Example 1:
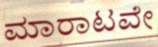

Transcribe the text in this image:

ಮಾರಾಟವೇ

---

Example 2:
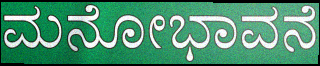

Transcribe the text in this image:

ಮನೋಭಾವನೆ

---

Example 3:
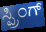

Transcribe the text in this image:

ಸ್ಪ್ರಿಂಗ್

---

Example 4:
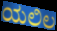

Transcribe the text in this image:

ಯಲಿಲ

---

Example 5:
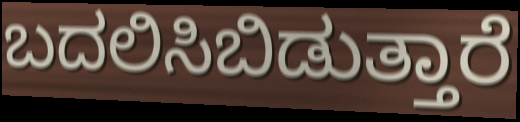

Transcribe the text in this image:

ಬದಲಿಸಿಬಿಡುತ್ತಾರೆ